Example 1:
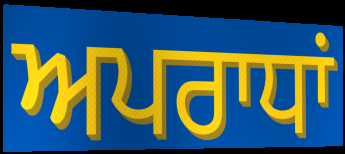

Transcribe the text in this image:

ਅਪਰਾਧਾਂ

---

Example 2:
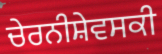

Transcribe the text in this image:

ਚੇਰਨੀਸ਼ੇਵਸਕੀ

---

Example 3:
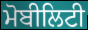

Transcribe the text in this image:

ਮੋਬੀਲਿਟੀ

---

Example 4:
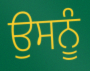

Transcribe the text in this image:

ਉਸਨੂੰ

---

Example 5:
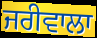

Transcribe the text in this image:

ਜਰੀਵਾਲਾ